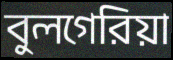
বুলগেরিয়া